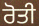
ਰੋਤੀ